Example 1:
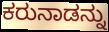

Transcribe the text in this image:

ಕರುನಾಡನ್ನು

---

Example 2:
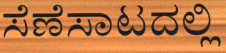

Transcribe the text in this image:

ಸೆಣೆಸಾಟದಲ್ಲಿ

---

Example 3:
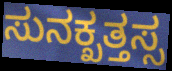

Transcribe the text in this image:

ಸುನಕ್ಖತ್ತಸ್ಸ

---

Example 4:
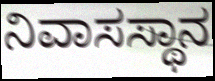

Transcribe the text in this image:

ನಿವಾಸಸ್ಥಾನ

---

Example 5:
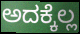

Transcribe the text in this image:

ಅದಕ್ಕೆಲ್ಲ